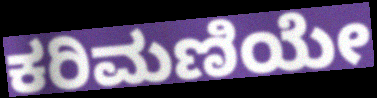
ಕರಿಮಣಿಯೇ